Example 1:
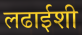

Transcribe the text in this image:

लढाईशी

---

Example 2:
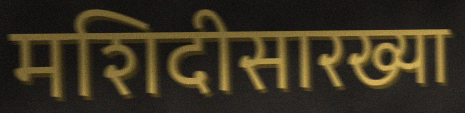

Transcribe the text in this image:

मशिदीसारख्या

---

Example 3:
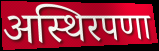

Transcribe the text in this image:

अस्थिरपणा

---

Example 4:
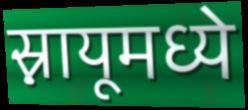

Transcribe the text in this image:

स्नायूमध्ये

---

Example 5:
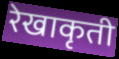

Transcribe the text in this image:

रेखाकृती